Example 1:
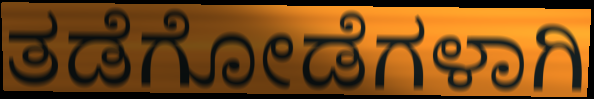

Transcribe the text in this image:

ತಡೆಗೋಡೆಗಳಾಗಿ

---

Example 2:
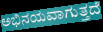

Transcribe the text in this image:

ಅಭಿನಯವಾಗುತ್ತದೆ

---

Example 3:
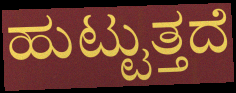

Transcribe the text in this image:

ಹುಟ್ಟುತ್ತದೆ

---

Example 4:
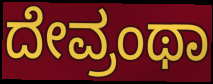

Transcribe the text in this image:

ದೇವ್ರಂಥಾ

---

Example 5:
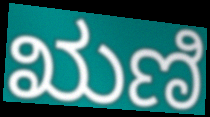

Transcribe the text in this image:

ಋಣಿ